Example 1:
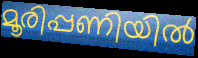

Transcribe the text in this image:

മൂരിപ്പണിയിൽ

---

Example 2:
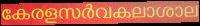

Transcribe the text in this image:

കേരളസർവകലാശാല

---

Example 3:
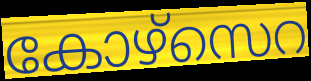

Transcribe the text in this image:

കോഴ്സെറ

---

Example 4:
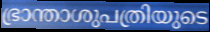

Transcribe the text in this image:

ഭ്രാന്താശുപത്രിയുടെ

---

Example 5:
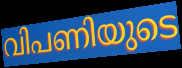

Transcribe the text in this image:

വിപണിയുടെ